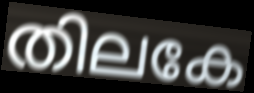
തിലകേ